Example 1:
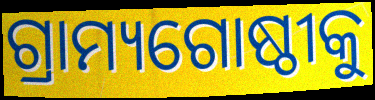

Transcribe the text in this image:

ଗ୍ରାମ୍ୟଗୋଷ୍ଠୀକୁ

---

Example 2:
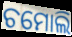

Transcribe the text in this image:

ଚମୋଲି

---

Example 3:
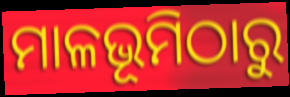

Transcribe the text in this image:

ମାଳଭୂମିଠାରୁ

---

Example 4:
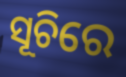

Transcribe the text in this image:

ସୂଚିରେ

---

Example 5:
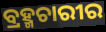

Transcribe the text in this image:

ବ୍ରହ୍ମଚାରୀର